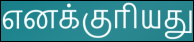
எனக்குரியது